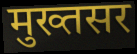
मुख्तसर